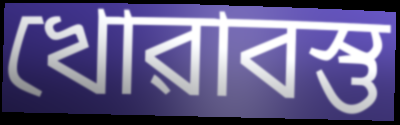
খোৱাবস্তু